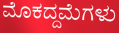
ಮೊಕದ್ದಮೆಗಳು